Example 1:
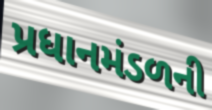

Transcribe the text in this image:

પ્રધાનમંડળની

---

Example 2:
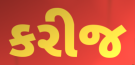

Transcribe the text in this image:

કરીજ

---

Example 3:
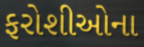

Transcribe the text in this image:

ફરોશીઓના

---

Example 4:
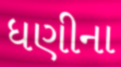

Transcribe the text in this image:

ધણીના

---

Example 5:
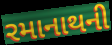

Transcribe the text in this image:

રમાનાથની